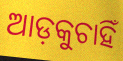
ଆଡ଼କୁଚାହିଁ